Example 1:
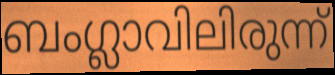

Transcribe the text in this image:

ബംഗ്ലാവിലിരുന്ന്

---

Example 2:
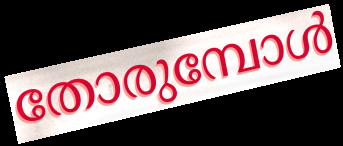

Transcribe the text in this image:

തോരുമ്പോൾ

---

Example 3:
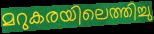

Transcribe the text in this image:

മറുകരയിലെത്തിച്ചു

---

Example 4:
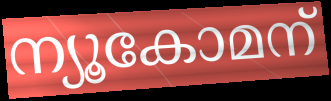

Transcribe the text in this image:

ന്യൂകോമന്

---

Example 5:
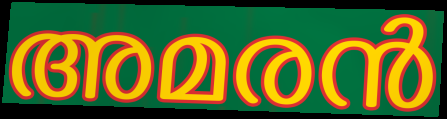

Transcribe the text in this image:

അമരൻ